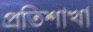
প্রতিশাখা